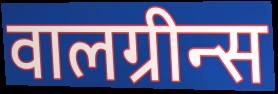
वालग्रीन्स